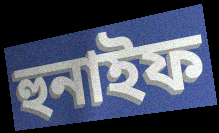
হুনাইফ